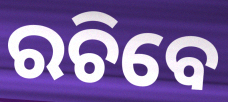
ରଚିବେ